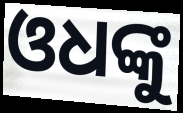
ଓଧଙ୍କୁ